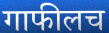
गाफीलच